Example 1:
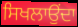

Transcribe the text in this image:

ਸਿਖਲਾਉਂਦਾ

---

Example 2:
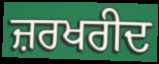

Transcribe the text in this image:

ਜ਼ਰਖਰੀਦ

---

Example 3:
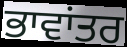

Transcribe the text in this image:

ਭਾਵਾਂਤਰ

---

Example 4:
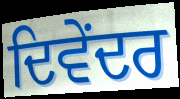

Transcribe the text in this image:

ਦਿਵੇਂਦਰ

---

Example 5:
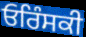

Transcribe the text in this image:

ਓਰਿੰਸਕੀ